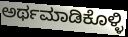
ಅರ್ಥಮಾಡಿಕೊಳ್ಳಿ